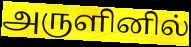
அருளினில்